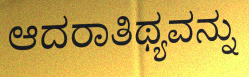
ಆದರಾತಿಥ್ಯವನ್ನು